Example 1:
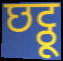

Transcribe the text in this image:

छट्ठू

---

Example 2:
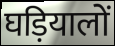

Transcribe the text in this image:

घड़ियालों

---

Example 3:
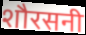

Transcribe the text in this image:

शौरसनी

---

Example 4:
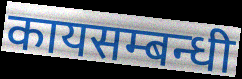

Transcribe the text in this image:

कायसम्बन्धी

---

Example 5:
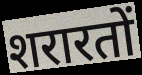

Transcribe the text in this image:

शरारतों